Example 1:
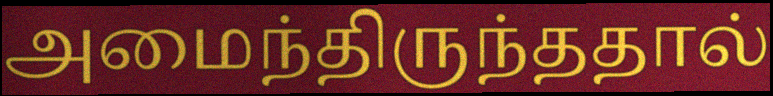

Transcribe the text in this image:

அமைந்திருந்ததால்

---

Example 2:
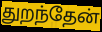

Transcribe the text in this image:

துறந்தேன்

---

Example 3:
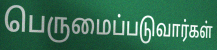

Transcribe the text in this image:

பெருமைப்படுவார்கள்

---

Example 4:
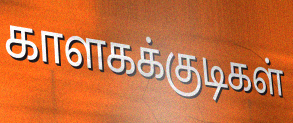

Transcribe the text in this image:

காளகக்குடிகள்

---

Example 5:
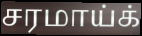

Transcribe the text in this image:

சரமாய்க்